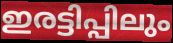
ഇരട്ടിപ്പിലും